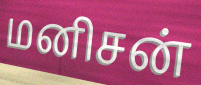
மனிசன்